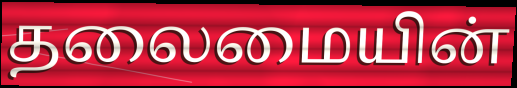
தலைமையின்